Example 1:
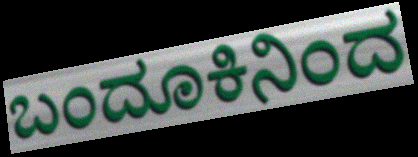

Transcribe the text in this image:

ಬಂದೂಕಿನಿಂದ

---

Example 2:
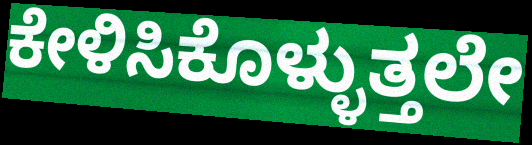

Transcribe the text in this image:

ಕೇಳಿಸಿಕೊಳ್ಳುತ್ತಲೇ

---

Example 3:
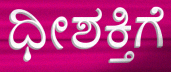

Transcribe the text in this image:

ಧೀಶಕ್ತಿಗೆ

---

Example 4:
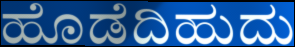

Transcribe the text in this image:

ಹೊಡೆದಿಹುದು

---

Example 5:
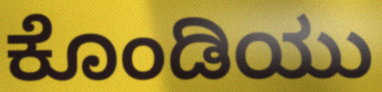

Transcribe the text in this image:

ಕೊಂಡಿಯು